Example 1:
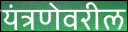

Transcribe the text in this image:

यंत्रणेवरील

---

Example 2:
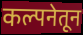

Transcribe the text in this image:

कल्पनेतून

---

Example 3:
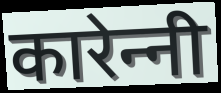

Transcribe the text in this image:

कारेन्नी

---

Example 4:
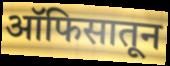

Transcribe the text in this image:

ऑफिसातून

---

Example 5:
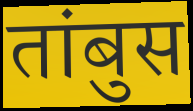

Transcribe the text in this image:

तांबुस